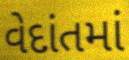
વેદાંતમાં